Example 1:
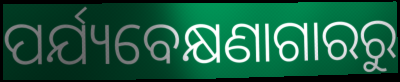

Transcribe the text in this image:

ପର୍ଯ୍ୟବେକ୍ଷଣାଗାରରୁ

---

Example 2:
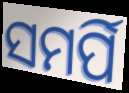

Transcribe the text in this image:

ସମର୍ପି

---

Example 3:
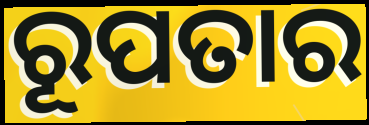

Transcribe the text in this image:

ରୂପତାର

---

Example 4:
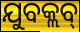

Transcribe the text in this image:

ଯୁବକ୍ଲବ୍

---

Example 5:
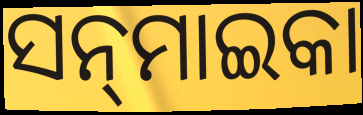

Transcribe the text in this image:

ସନ୍‌ମାଇକା